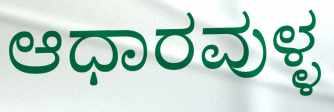
ಆಧಾರವುಳ್ಳ